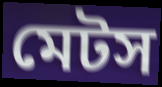
মেটস